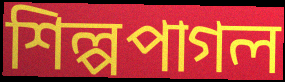
শিল্পপাগল